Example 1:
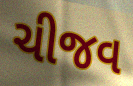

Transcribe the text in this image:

ચીજવ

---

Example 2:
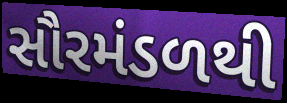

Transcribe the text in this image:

સૌરમંડળથી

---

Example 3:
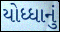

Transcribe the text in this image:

યોધ્ધાનું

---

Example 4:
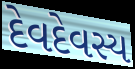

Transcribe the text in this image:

દેવદેવસ્ય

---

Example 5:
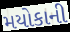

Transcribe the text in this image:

મયોકાની